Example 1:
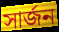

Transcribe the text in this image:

সার্জন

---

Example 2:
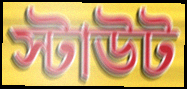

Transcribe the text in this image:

স্টাউট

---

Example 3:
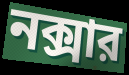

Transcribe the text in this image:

নক্সার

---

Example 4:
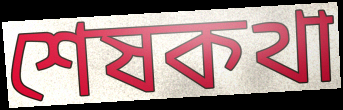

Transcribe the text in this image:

শেষকথা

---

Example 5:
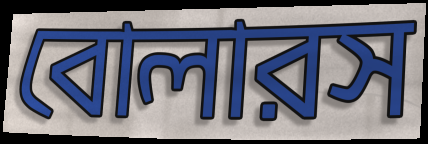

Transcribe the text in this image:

বোলারস